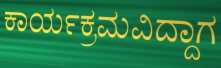
ಕಾರ್ಯಕ್ರಮವಿದ್ದಾಗ